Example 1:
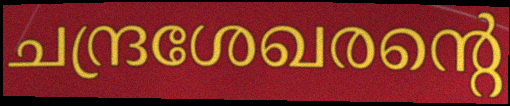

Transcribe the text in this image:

ചന്ദ്രശേഖരന്റെ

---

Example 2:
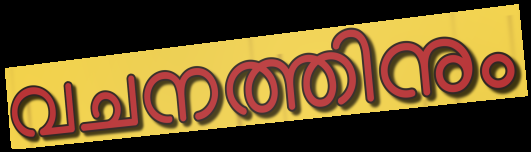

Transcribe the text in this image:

വചനത്തിനും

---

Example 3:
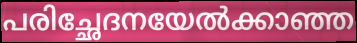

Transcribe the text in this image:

പരിച്ഛേദനയേൽക്കാഞ്ഞ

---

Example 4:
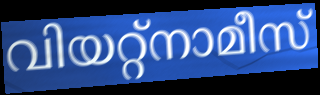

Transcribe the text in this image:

വിയറ്റ്നാമീസ്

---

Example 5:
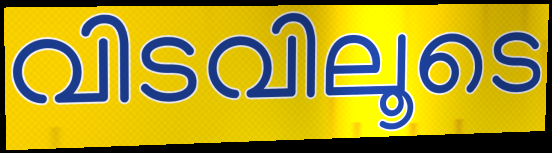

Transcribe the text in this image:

വിടവിലൂടെ